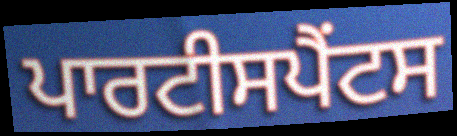
ਪਾਰਟੀਸਪੈਂਟਸ